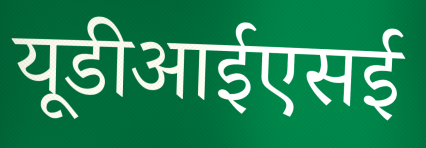
यूडीआईएसई